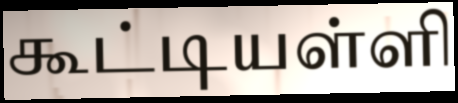
கூட்டியள்ளி